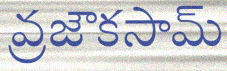
వ్రజౌకసామ్